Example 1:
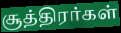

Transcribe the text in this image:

சூத்திரர்கள்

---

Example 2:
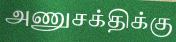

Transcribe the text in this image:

அணுசக்திக்கு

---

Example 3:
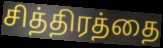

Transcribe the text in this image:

சித்திரத்தை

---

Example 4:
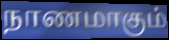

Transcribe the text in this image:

நாணமாகும்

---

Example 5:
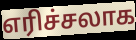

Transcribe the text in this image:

எரிச்சலாக